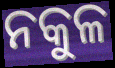
ନକୁଳ